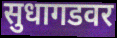
सुधागडवर